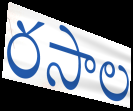
రసాల